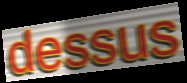
dessus